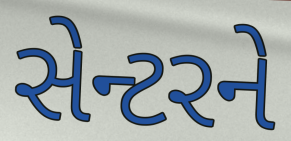
સેન્ટરને